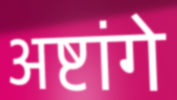
अष्टांगे